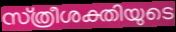
സ്‌ത്രീശക്തിയുടെ